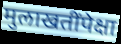
मुलाखतींपेक्षा